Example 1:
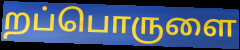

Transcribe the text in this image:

றப்பொருளை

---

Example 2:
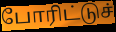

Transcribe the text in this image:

போரிட்டுச்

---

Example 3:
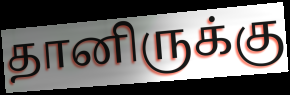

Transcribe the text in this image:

தானிருக்கு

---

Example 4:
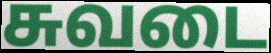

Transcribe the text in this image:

சுவடை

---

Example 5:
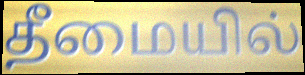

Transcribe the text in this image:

தீமையில்